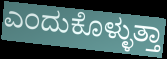
ಎಂದುಕೊಳ್ಳುತ್ತಾ